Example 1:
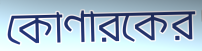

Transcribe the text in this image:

কোণারকের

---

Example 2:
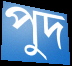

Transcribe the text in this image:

পুদ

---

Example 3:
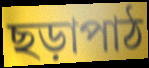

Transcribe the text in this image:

ছড়াপাঠ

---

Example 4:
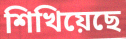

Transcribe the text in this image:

শিখিয়েছে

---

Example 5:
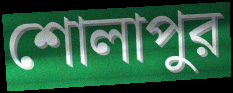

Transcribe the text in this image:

শোলাপুর